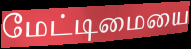
மேட்டிமையை